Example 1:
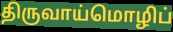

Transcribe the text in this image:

திருவாய்மொழிப்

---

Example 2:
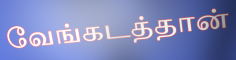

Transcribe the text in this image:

வேங்கடத்தான்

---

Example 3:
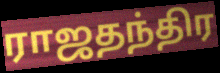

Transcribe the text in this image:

ராஜதந்திர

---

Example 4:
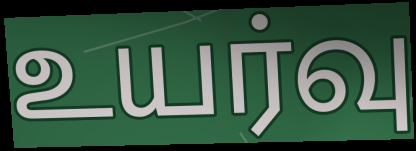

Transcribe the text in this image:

உயர்வு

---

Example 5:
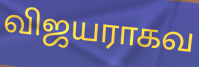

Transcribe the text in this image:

விஜயராகவ